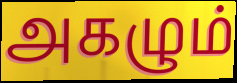
அகழும்